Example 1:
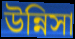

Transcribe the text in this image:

উন্নিসা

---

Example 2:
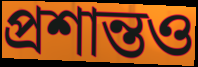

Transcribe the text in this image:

প্রশান্তও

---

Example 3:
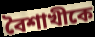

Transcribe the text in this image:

বৈশাখীকে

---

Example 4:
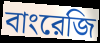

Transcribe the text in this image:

বাংরেজি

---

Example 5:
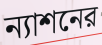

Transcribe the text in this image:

ন্যাশনের